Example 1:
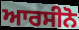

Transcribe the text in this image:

ਆਰਸੀਨੋ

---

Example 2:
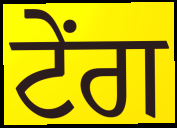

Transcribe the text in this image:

ਟੇਂਗ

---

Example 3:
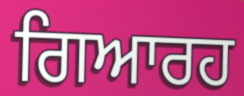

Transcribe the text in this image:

ਗਿਆਰਹ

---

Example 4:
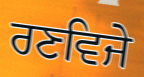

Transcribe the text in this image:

ਰਣਵਿਜੇ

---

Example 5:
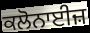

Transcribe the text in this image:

ਕਲੋਨਾਈਜ਼